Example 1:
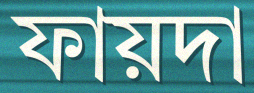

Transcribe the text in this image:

ফায়দা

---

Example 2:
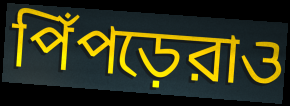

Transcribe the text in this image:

পিঁপড়েরাও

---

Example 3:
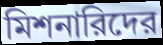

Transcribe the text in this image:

মিশনারিদের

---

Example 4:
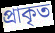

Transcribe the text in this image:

প্রাকৃত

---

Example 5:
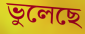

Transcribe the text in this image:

ভুলেছে